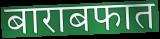
बाराबफात